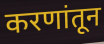
करणांतून